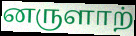
னருளாற்